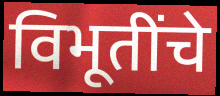
विभूतींचे